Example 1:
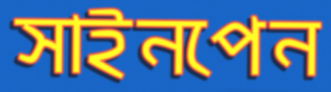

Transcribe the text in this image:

সাইনপেন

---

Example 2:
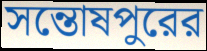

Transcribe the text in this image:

সন্তোষপুরের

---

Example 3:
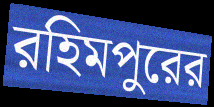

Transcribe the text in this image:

রহিমপুরের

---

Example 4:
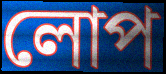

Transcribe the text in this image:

লোপ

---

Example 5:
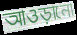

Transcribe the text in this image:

আওড়ানো